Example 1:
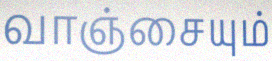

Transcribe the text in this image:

வாஞ்சையும்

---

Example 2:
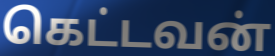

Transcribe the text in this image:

கெட்டவன்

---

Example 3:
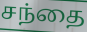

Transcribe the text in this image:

சந்தை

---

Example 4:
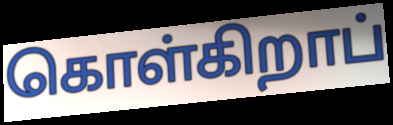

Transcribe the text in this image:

கொள்கிறாப்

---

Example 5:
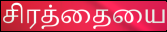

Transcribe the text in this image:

சிரத்தையை